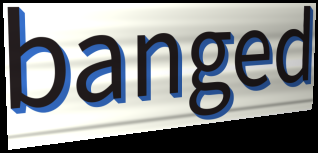
banged